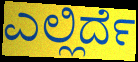
ಎಲ್ಲಿರ್ದೆ